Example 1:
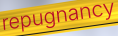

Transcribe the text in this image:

repugnancy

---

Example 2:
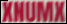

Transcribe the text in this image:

XNUMX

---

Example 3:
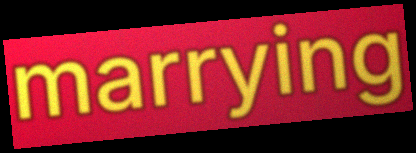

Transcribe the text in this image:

marrying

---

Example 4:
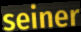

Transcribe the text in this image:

seiner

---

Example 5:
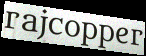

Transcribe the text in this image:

rajcopper